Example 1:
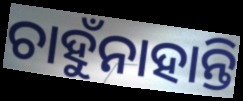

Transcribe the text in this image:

ଚାହୁଁନାହାନ୍ତି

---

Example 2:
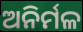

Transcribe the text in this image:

ଅନିର୍ମଳ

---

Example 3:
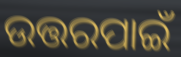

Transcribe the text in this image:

ଉତ୍ତରପାଇଁ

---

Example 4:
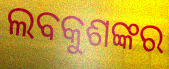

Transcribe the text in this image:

ଲବକୁଶଙ୍କର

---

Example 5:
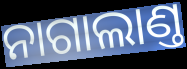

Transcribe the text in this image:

ନାଗାଲାଣ୍ତ